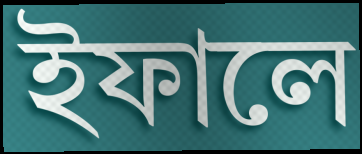
ইফালে